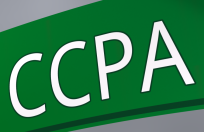
CCPA